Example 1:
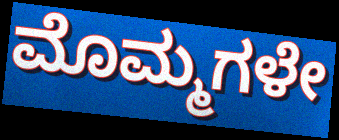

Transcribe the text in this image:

ಮೊಮ್ಮಗಳೇ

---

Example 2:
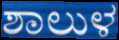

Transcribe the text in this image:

ಶಾಲುಳ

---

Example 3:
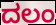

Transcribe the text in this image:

ದಲಂ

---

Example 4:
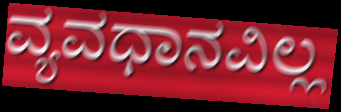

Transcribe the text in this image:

ವ್ಯವಧಾನವಿಲ್ಲ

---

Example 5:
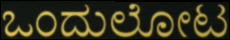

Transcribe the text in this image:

ಒಂದುಲೋಟ